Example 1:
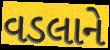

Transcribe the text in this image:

વડલાને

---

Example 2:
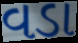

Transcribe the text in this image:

વડા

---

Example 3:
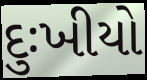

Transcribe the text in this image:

દુઃખીયો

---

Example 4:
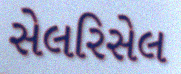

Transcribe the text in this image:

સેલરિસેલ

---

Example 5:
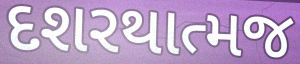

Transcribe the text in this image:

દશરથાત્મજ